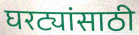
घरट्यांसाठी